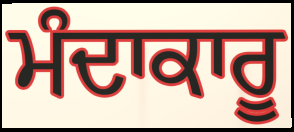
ਮੰਦਾਕਾਰੂ